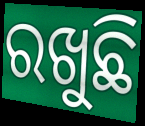
ରଖୁଛି